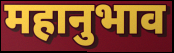
महानुभाव